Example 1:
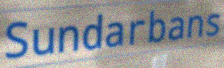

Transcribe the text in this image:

Sundarbans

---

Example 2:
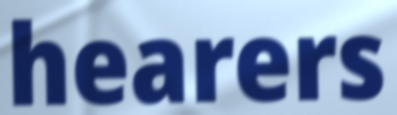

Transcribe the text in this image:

hearers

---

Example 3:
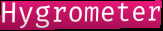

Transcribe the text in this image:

Hygrometer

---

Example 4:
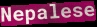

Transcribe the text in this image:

Nepalese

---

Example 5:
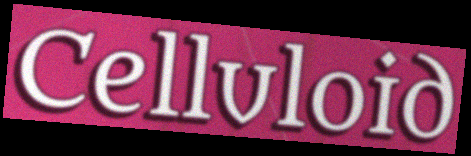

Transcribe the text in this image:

Celluloid